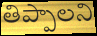
తిప్పాలని